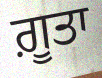
ਗ਼ੂਤਾ